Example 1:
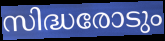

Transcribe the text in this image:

സിദ്ധരോടും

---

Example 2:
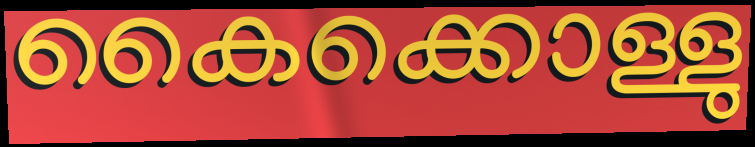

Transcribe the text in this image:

കൈക്കൊള്ളു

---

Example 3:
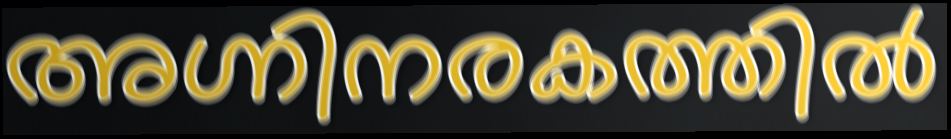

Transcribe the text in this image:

അഗ്നിനരകത്തിൽ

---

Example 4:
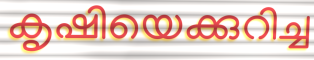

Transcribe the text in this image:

കൃഷിയെക്കുറിച്ച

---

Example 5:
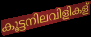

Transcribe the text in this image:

കൂട്ടനിലവിളികള്